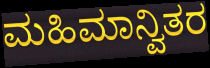
ಮಹಿಮಾನ್ವಿತರ